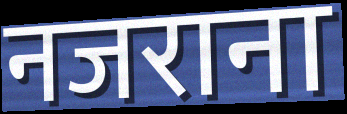
नजराना